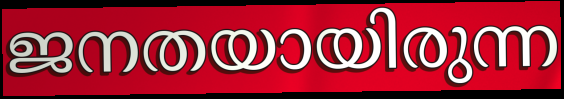
ജനതയായിരുന്ന